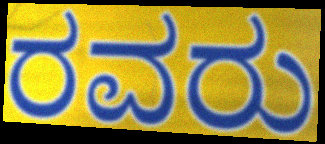
ರವರು